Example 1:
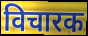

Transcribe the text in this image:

विचारक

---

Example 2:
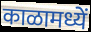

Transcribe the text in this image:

काळामध्यें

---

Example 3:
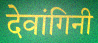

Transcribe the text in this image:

देवांगिनी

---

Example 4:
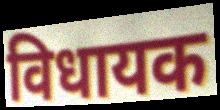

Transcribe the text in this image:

विधायक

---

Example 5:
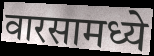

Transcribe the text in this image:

वारसामध्ये